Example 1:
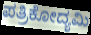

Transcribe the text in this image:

ಪತ್ರಿಕೋದ್ಯಮಿ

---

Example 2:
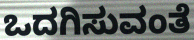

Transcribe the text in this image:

ಒದಗಿಸುವಂತೆ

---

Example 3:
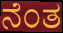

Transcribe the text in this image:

ನೆಂತ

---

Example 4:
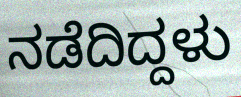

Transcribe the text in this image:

ನಡೆದಿದ್ದಳು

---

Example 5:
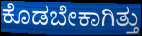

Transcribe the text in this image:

ಕೊಡಬೇಕಾಗಿತ್ತು